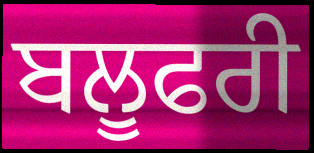
ਬਲੂਫਰੀ